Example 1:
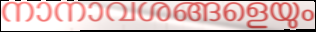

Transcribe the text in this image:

നാനാവശങ്ങളെയും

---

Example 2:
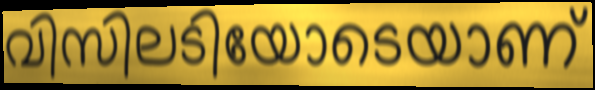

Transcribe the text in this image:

വിസിലടിയോടെയാണ്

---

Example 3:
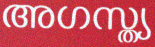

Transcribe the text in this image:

അഗസ്ത്യ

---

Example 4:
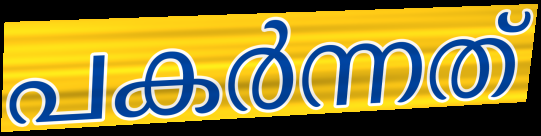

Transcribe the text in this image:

പകർന്നത്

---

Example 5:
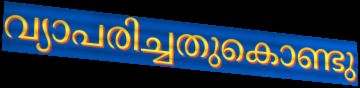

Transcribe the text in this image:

വ്യാപരിച്ചതുകൊണ്ടു